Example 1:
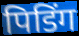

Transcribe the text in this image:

पिडिंग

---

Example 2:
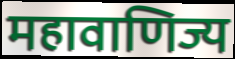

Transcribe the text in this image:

महावाणिज्‍य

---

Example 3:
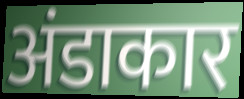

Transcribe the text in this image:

अंडाकार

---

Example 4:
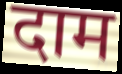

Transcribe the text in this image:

दाम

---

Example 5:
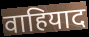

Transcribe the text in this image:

वाहियाद